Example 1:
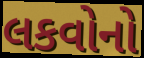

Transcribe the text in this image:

લકવોનો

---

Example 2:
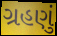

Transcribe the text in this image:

ગ્રહણું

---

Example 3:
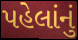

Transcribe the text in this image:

પહેલાંનું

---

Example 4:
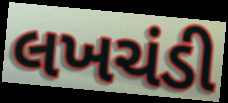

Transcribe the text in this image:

લખચંડી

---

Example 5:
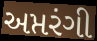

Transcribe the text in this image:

અપ્તરંગી